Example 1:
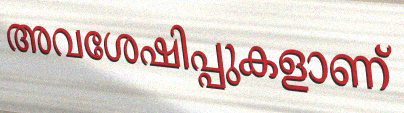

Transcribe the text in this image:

അവശേഷിപ്പുകളാണ്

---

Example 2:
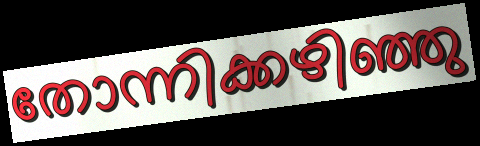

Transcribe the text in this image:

തോന്നിക്കഴിഞ്ഞു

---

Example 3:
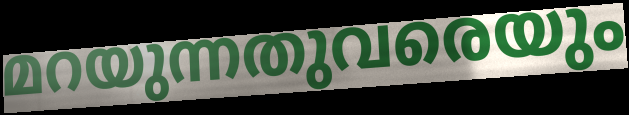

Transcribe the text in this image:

മറയുന്നതുവരെയും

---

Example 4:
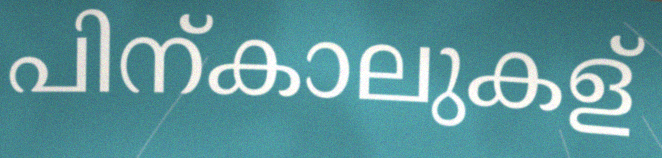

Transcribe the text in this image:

പിന്കാലുകള്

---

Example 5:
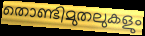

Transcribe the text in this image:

തൊണ്ടിമുതലുകളും